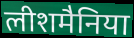
लीशमैनिया